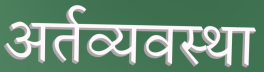
अर्तव्यवस्था